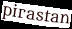
pirastan